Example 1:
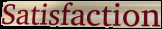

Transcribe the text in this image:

Satisfaction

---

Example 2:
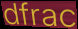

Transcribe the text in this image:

dfrac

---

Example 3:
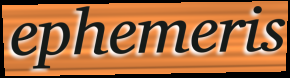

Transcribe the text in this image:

ephemeris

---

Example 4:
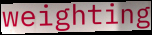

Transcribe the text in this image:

weighting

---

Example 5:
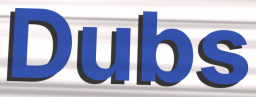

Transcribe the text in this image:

Dubs